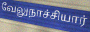
வேலுநாச்சியார்